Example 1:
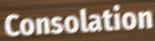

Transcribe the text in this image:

Consolation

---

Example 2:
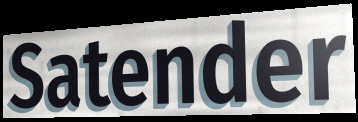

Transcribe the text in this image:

Satender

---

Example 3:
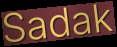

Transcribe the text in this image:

Sadak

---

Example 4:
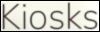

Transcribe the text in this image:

Kiosks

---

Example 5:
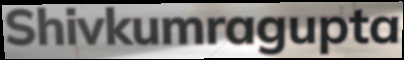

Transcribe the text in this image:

Shivkumragupta